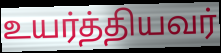
உயர்த்தியவர்